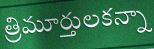
త్రిమూర్తులకన్నా